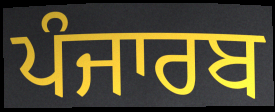
ਪੰਜਾਰਬ